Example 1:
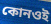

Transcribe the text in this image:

কোনওই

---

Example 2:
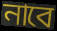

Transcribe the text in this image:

নাবে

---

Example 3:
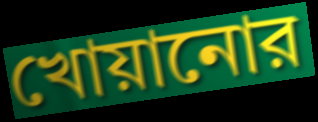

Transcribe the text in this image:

খোয়ানোর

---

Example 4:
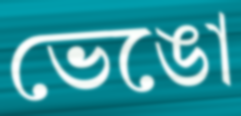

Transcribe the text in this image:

ভেঙো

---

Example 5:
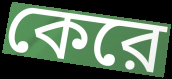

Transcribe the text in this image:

কেরে